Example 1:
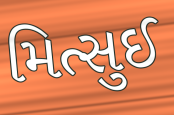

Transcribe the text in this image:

મિત્સુઈ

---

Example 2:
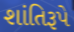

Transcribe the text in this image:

શાંતિરૂપે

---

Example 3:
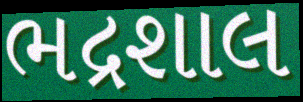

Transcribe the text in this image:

ભદ્રશાલ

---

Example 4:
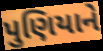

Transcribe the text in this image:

પુણિયાને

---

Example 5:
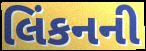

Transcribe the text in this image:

લિંકનની